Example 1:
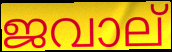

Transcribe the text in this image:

ജവാല്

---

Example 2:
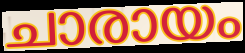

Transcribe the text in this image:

ചാരായം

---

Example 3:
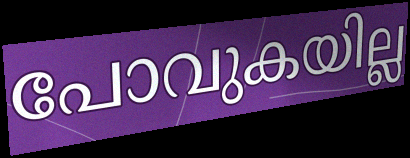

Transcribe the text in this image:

പോവുകയില്ല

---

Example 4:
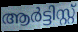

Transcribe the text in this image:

ആർട്ടിസ്റ്റ്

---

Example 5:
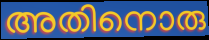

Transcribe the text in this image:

അതിനൊരു